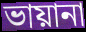
ভায়ানা